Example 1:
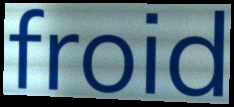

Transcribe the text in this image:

froid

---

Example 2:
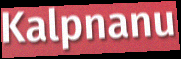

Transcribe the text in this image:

Kalpnanu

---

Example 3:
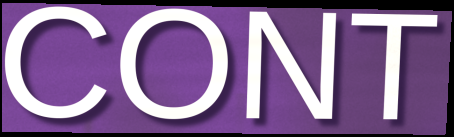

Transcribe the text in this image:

CONT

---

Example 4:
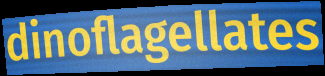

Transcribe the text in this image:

dinoflagellates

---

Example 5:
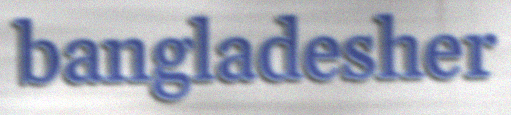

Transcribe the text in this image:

bangladesher